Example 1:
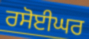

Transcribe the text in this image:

ਰਸੋਈਘਰ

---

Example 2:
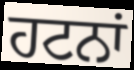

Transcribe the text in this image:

ਹਟਨਾਂ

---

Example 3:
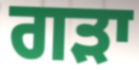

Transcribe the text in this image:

ਗੜਾ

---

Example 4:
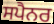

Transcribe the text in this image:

ਸਪੈਨਰ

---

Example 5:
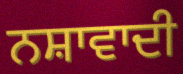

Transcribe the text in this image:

ਨਸ਼ਾਵਾਦੀ